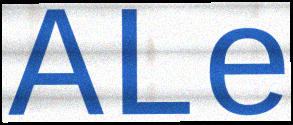
ALe